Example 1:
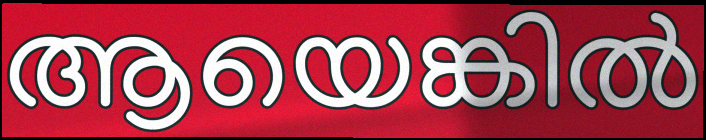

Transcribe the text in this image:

ആയെങ്കിൽ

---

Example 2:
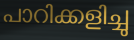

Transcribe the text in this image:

പാറിക്കളിച്ചു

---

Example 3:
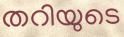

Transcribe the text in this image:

തറിയുടെ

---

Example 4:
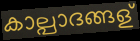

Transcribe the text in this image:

കാല്പാദങ്ങള്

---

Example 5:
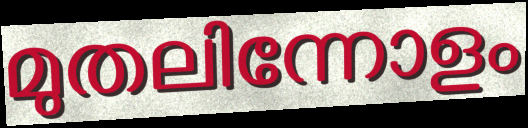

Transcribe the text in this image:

മുതലിന്നോളം